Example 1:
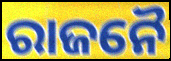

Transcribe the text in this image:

ରାଜନୈ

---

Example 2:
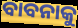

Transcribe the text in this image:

ବାବନାକୁ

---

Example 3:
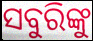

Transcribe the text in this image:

ସବୁରିଙ୍କୁ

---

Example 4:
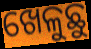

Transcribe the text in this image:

ଖେଳୁଛୁ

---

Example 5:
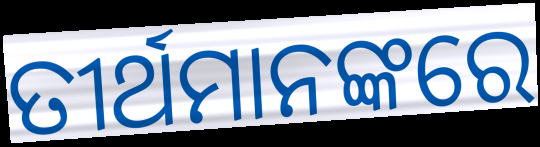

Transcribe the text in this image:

ତୀର୍ଥମାନଙ୍କରେ